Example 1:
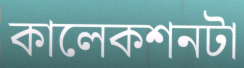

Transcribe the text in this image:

কালেকশনটা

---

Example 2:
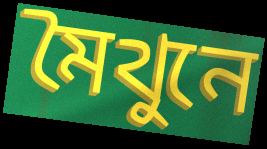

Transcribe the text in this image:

মৈথুনে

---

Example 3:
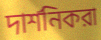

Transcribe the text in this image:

দার্শনিকরা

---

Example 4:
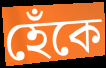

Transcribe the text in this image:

হেঁকে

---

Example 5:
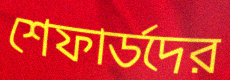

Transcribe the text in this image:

শেফার্ডদের